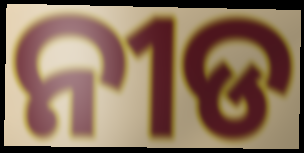
ନୀଡ